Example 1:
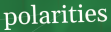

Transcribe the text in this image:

polarities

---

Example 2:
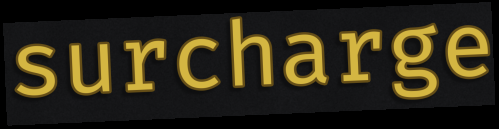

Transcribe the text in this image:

surcharge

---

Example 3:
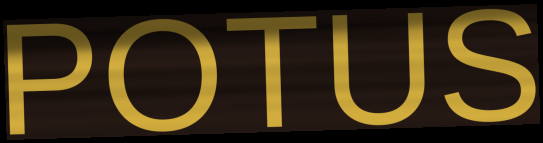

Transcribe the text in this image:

POTUS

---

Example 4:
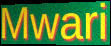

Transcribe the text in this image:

Mwari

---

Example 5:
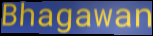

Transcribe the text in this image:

Bhagawan